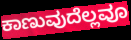
ಕಾಣುವುದೆಲ್ಲವೂ